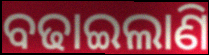
ବଢାଇଲାଣି